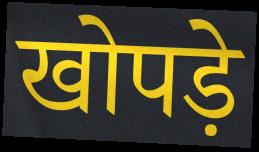
खोपड़े